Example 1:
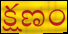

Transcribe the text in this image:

క్షణం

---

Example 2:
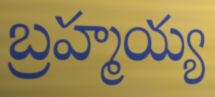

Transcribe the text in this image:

బ్రహ్మయ్య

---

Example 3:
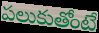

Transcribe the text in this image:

పలుకుతోంటే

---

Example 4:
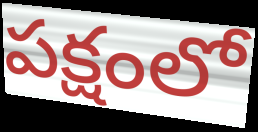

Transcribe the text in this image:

పక్షంలో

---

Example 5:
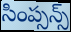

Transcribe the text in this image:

సింప్సన్స్